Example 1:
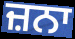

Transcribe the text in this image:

ਜ਼ਨਾ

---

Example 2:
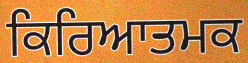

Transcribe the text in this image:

ਕਿਰਿਆਤਮਕ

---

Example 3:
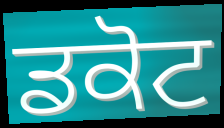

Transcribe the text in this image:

ਡਕੋਟ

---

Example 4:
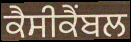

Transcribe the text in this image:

ਕੈਸੀਕੈਂਬਲ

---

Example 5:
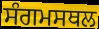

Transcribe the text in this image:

ਸੰਗਮਸਥਲ